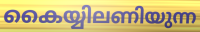
കൈയ്യിലണിയുന്ന